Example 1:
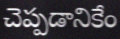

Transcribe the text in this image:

చెప్పడానికేం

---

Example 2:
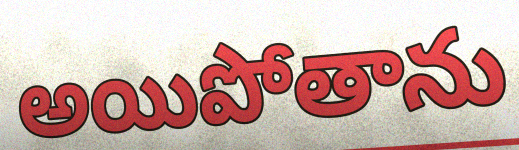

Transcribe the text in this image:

అయిపోతాను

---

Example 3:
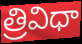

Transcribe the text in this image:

త్రివిధా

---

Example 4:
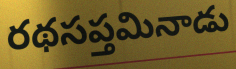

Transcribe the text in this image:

రథసప్తమినాడు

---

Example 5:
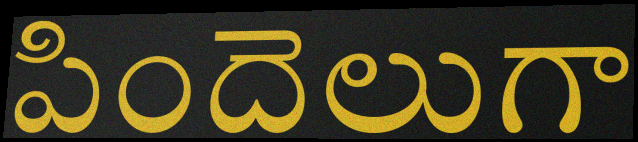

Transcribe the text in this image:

పిందెలుగా